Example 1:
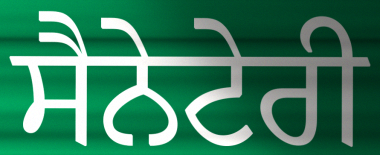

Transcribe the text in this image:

ਸੈਨੇਟੇਰੀ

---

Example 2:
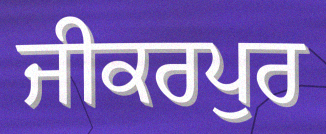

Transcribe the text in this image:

ਜੀਕਰਪੁਰ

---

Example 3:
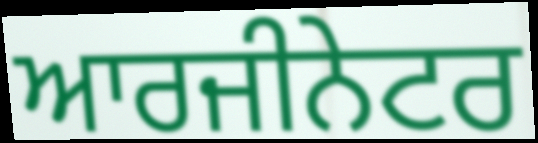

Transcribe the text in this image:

ਆਰਜੀਨੇਟਰ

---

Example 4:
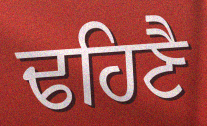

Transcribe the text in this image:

ਢਹਿਣੈ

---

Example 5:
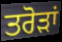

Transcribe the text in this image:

ਤਰੋੜਾਂ